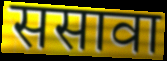
ससावा